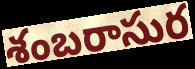
శంబరాసుర